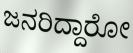
ಜನರಿದ್ದಾರೋ